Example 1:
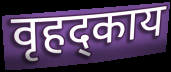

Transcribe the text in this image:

वृहद्काय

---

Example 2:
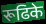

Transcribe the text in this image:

रूढिके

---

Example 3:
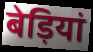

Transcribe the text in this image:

बेड़ियां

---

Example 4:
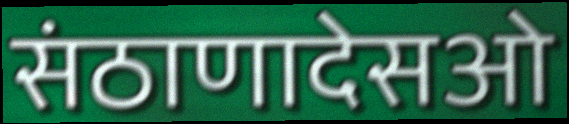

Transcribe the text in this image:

संठाणादेसओ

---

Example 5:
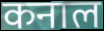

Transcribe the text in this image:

कनाल